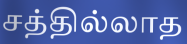
சத்தில்லாத